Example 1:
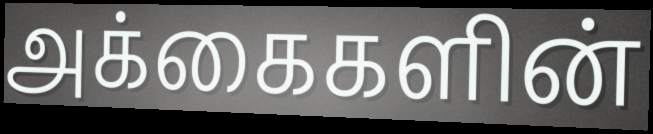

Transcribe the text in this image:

அக்கைகளின்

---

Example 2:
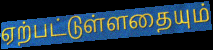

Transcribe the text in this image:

ஏற்பட்டுள்ளதையும்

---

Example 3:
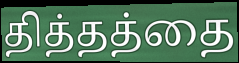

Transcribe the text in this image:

தித்தத்தை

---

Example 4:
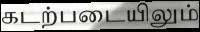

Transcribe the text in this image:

கடற்படையிலும்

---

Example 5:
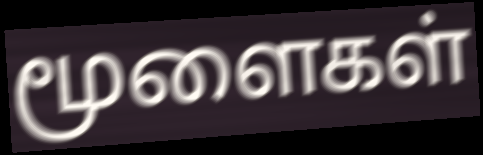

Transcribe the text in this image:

மூளைகள்